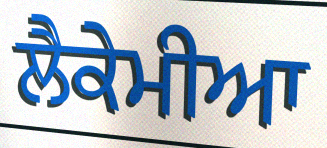
ਲੈਕੇਮੀਆ